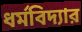
ধর্মবিদ্যার